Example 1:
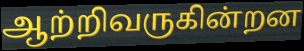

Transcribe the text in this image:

ஆற்றிவருகின்றன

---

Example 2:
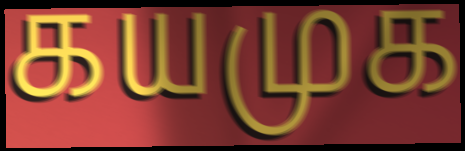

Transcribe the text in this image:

கயமுக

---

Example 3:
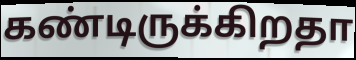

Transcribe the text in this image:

கண்டிருக்கிறதா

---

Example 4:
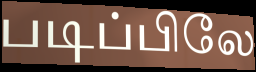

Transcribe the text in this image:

படிப்பிலே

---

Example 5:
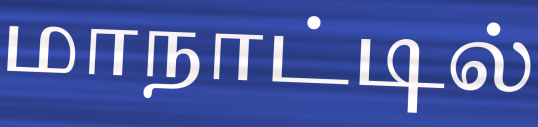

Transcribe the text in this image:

மாநாட்டில்